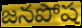
జనపోష